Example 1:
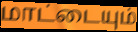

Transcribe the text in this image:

மாட்டையும்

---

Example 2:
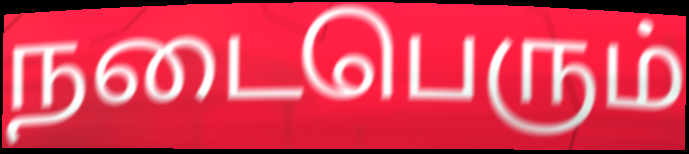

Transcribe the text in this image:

நடைபெரும்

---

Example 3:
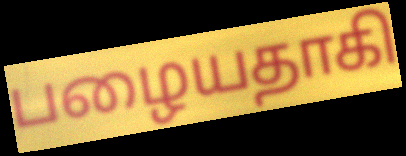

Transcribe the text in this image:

பழையதாகி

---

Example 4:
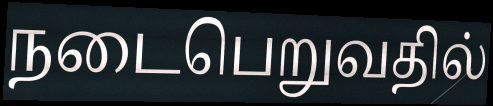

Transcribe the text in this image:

நடைபெறுவதில்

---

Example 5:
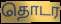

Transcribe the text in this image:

தொடர